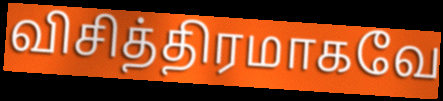
விசித்திரமாகவே